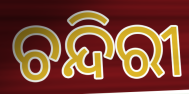
ଚନ୍ଦିରୀ